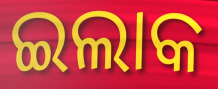
ଇଲାକ